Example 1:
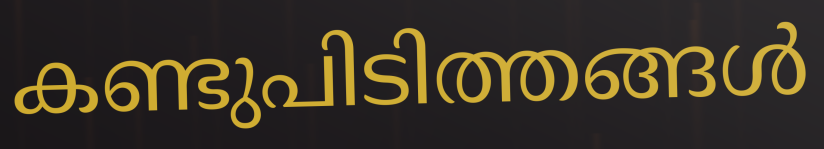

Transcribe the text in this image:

കണ്ടുപിടിത്തങ്ങൾ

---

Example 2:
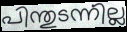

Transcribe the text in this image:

പിന്തുടൎന്നില്ല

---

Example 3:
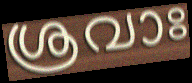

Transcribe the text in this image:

ശ്രവാഃ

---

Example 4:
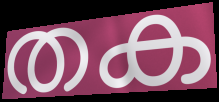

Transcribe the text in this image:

തക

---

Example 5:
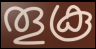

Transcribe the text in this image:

തൂകൂ